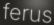
ferus